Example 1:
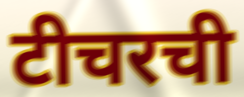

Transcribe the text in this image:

टीचरची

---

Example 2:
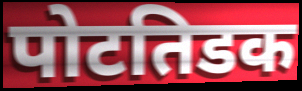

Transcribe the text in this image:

पोटतिडक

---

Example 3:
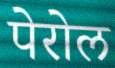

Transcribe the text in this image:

पेरोल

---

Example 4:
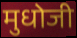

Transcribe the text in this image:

मुधोजी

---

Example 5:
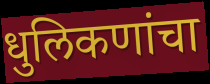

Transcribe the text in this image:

धुलिकणांचा